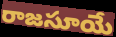
రాజసూయే